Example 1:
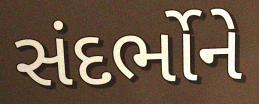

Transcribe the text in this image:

સંદર્ભોને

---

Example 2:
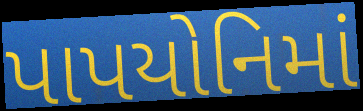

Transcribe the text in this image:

પાપયોનિમાં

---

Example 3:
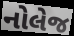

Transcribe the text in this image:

નોલેજ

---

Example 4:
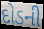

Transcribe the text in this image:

દોડની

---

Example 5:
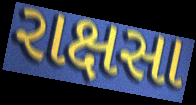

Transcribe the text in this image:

રાક્ષસા